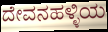
ದೇವನಹಳ್ಳಿಯ